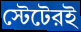
স্টেটেরই